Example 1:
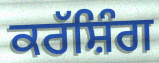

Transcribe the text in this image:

ਕਰੱਸ਼ਿੰਗ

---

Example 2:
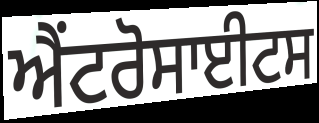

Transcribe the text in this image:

ਐਂਟਰੋਸਾਈਟਸ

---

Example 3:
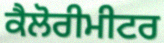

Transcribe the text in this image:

ਕੈਲੋਰੀਮੀਟਰ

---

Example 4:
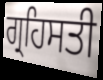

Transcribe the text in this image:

ਗ੍ਰਹਿਸਤੀ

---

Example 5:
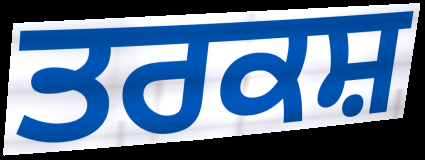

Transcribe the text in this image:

ਤਰਕਸ਼